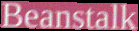
Beanstalk